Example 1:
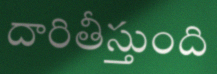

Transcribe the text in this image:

దారితీస్తుంది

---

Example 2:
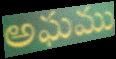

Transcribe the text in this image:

అఘము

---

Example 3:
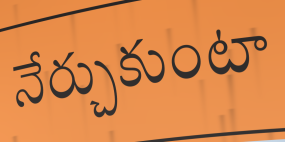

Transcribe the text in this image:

నేర్చుకుంటా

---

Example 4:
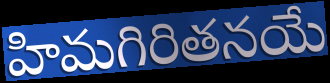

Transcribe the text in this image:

హిమగిరితనయే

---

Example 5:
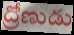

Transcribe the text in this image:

ద్రోణుడు